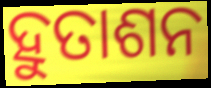
ହୁତାଶନ